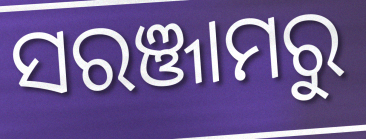
ସରଞ୍ଜାମରୁ